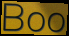
Boo